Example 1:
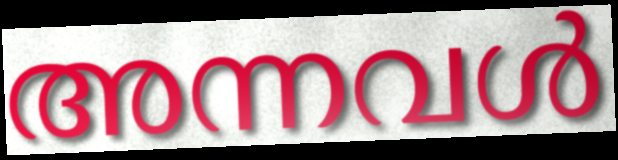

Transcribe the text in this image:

അന്നവൾ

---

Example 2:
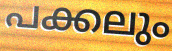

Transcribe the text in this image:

പക്കലും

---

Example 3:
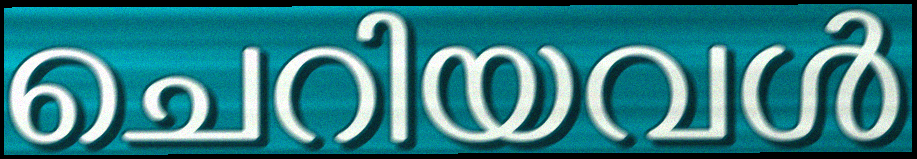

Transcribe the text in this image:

ചെറിയവൾ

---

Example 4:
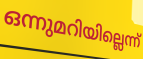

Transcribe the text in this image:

ഒന്നുമറിയില്ലെന്ന്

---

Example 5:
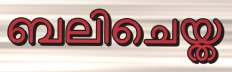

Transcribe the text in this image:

ബലിചെയ്ത